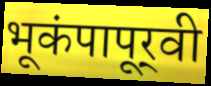
भूकंपापूर्वी